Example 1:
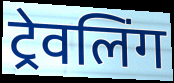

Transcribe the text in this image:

ट्रेवलिंग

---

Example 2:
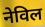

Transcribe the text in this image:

नेविल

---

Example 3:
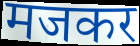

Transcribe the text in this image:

मजकर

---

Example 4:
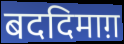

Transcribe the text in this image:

बददिमाग़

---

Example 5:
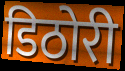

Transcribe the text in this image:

डिठोरी